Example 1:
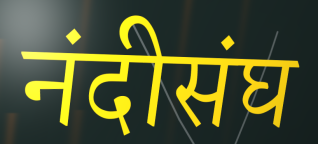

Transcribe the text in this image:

नंदीसंघ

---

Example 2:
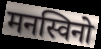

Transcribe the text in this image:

मनस्विनो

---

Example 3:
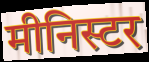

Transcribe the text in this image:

मीनिस्टर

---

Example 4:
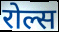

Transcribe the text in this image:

रोल्स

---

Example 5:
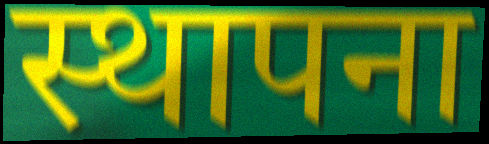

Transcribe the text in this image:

स्‍थापना